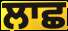
ਲਾਛ